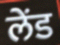
लेंड